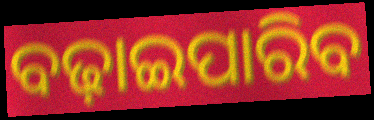
ବଢ଼ାଇପାରିବ